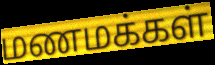
மணமக்கள்